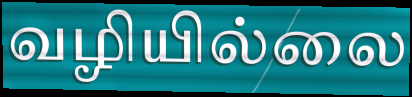
வழியில்லை